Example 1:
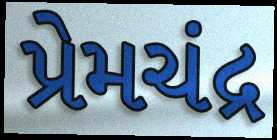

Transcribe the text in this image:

પ્રેમચંદ્ર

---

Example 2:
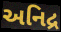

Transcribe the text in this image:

અનિદ્ર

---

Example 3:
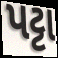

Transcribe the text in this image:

પટ્ટા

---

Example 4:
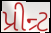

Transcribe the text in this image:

પ્રીન્ર્ટ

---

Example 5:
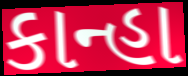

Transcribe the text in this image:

કાન્હા